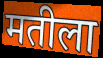
मतीला